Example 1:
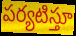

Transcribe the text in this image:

పర్యటిస్తూ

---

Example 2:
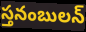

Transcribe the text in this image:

స్తనంబులన్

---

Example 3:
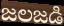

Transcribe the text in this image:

జలజడి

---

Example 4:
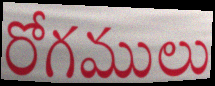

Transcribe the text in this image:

రోగములు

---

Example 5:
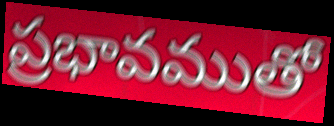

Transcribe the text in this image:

ప్రభావముతో